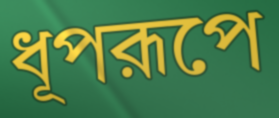
ধূপরূপে